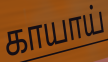
காயாய்